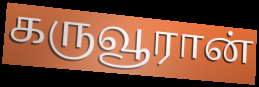
கருவூரான்